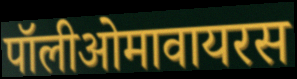
पॉलीओमावायरस